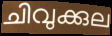
ചിവുക്കുല